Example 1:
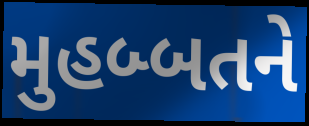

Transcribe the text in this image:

મુહબ્બતને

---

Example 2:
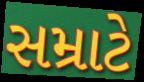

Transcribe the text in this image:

સમ્રાટે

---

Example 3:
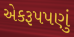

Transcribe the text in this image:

એકરૂપપણું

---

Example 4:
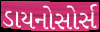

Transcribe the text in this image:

ડાયનોસોર્સ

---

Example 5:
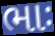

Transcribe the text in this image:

ભાઃ